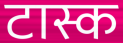
टास्क